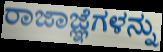
ರಾಜಾಜ್ಞೆಗಳನ್ನು